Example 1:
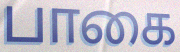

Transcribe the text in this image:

பாகை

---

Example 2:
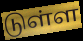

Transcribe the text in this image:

டுள்ள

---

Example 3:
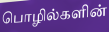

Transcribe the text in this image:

பொழில்களின்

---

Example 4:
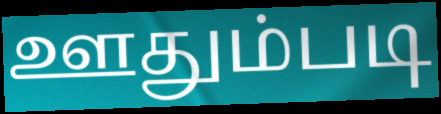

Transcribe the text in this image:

ஊதும்படி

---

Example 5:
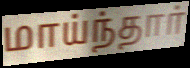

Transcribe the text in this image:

மாய்ந்தார்